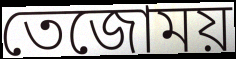
তেজোময়